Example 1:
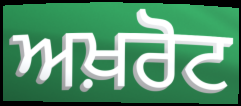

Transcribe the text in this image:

ਅਖ਼ਰੋਟ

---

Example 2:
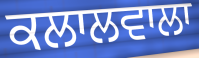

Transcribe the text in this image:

ਕਲਾਲਵਾਲਾ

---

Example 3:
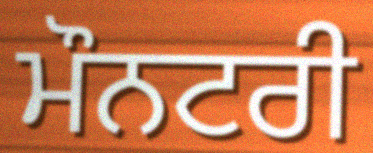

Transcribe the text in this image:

ਮੌਨਟਰੀ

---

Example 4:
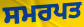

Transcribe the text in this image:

ਸਮਰਪਤ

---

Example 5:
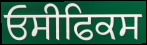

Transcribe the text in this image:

ਓਸੀਫਿਕਸ